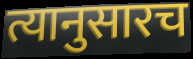
त्यानुसारच